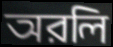
অরলি